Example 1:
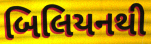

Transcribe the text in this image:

બિલિયનથી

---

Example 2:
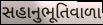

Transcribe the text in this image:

સહાનુભૂતિવાળા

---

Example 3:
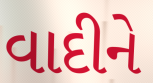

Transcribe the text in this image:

વાદીને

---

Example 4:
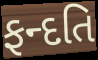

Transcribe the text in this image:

ફન્દતિ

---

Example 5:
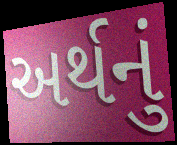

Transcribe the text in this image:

અર્થનું